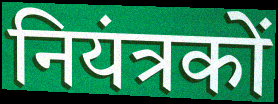
नियंत्रकों